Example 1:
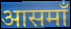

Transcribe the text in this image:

आसमाँ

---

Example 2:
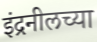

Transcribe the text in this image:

इंद्रनीलच्या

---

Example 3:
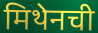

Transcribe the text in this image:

मिथेनची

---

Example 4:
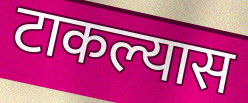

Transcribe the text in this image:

टाकल्यास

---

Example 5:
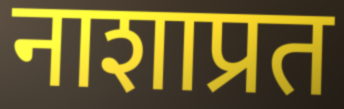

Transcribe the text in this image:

नाशाप्रत